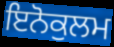
ਇਨੋਕੁਲਮ